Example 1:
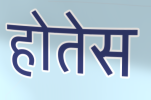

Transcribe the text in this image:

होतेस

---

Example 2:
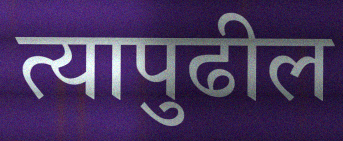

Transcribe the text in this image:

त्यापुढील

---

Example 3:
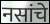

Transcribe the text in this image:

नसांचे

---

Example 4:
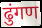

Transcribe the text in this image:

ढुंगण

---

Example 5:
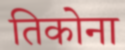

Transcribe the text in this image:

तिकोना